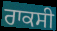
ਰਾਕਸੀ